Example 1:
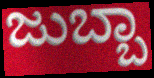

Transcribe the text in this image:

ಜುಬ್ಬಾ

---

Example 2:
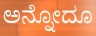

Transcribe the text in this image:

ಅನ್ನೋದೂ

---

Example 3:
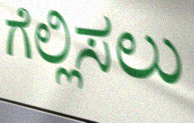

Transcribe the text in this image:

ಗೆಲ್ಲಿಸಲು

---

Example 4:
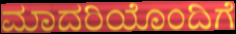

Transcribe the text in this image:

ಮಾದರಿಯೊಂದಿಗೆ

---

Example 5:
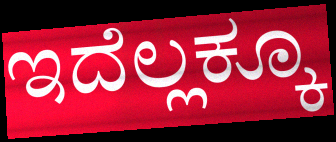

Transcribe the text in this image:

ಇದೆಲ್ಲಕ್ಕೂ